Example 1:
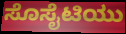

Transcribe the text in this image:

ಸೊಸೈಟಿಯು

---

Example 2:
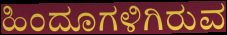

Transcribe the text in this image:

ಹಿಂದೂಗಳಿಗಿರುವ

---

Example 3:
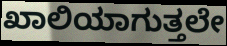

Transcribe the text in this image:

ಖಾಲಿಯಾಗುತ್ತಲೇ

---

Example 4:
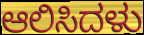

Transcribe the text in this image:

ಆಲಿಸಿದಳು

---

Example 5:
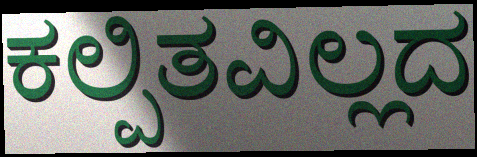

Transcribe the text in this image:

ಕಲ್ಪಿತವಿಲ್ಲದ